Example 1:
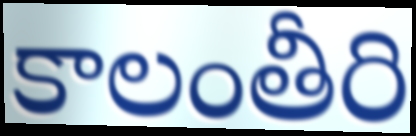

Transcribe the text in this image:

కాలంతీరి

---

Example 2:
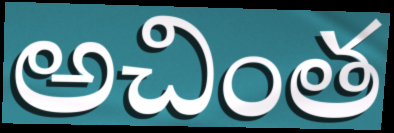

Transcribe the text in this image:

అచింత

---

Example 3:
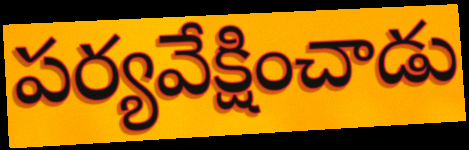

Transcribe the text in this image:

పర్యవేక్షించాడు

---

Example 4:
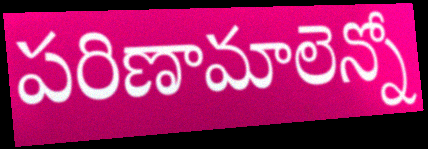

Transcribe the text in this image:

పరిణామాలెన్నో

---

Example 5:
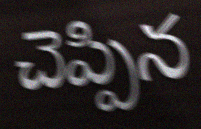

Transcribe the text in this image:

చెప్పిన